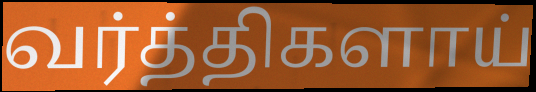
வர்த்திகளாய்